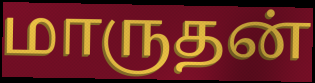
மாருதன்